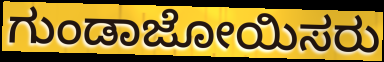
ಗುಂಡಾಜೋಯಿಸರು